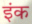
इंक